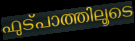
ഫുട്പാത്തിലൂടെ